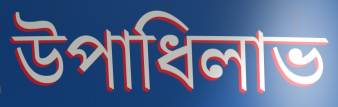
উপাধিলাভ